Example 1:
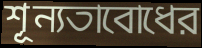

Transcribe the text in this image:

শূন্যতাবোধের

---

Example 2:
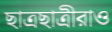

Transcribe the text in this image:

ছাত্রছাত্রীরাও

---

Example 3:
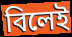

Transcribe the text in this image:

বিলেই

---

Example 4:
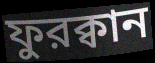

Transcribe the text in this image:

ফুরক্বান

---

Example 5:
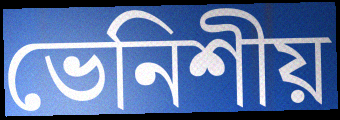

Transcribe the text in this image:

ভেনিশীয়